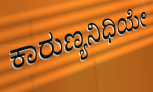
ಕಾರುಣ್ಯನಿಧಿಯೇ